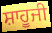
ਸ਼ਾਹੂਜੀ